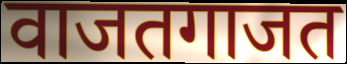
वाजतगाजत